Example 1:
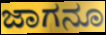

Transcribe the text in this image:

ಜಾಗನೂ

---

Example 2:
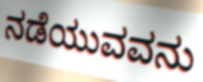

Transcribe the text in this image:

ನಡೆಯುವವನು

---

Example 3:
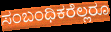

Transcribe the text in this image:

ಸಂಬಂಧಿಕರೆಲ್ಲರೂ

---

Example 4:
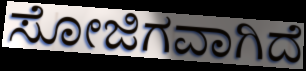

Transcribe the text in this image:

ಸೋಜಿಗವಾಗಿದೆ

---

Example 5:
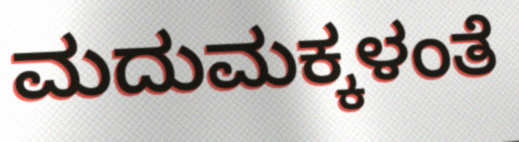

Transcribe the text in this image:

ಮದುಮಕ್ಕಳಂತೆ